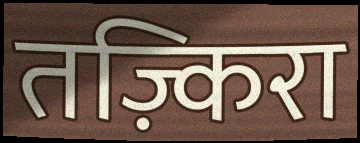
तज़्किरा